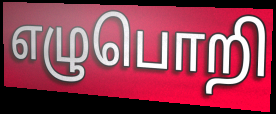
எழுபொறி